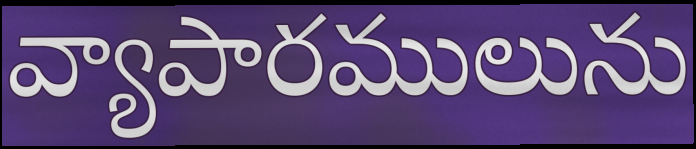
వ్యాపారములును